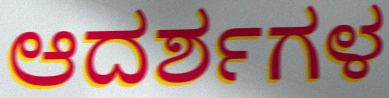
ಆದರ್ಶಗಳ